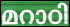
മറാഠി